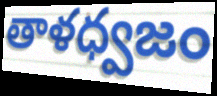
తాళధ్వజం